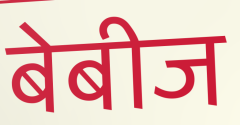
बेबीज